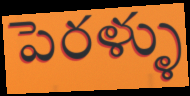
పెరళ్ళు